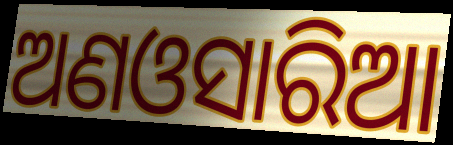
ଅଣଓସାରିଆ